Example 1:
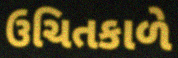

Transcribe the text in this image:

ઉચિતકાળે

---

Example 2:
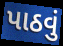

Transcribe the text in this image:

પાઠવું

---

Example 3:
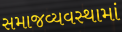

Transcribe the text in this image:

સમાજવ્યવસ્થામાં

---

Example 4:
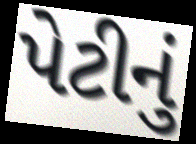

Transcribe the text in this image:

પેટીનું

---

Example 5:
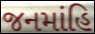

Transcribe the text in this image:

જનમાંહિ